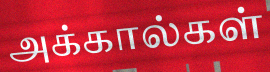
அக்கால்கள்